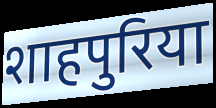
शाहपुरिया